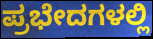
ಪ್ರಭೇದಗಳಲ್ಲಿ